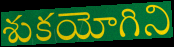
శుకయోగిని